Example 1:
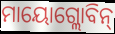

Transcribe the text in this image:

ମାୟୋଗ୍ଲୋବିନ୍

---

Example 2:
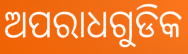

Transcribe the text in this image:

ଅପରାଧଗୁଡିକ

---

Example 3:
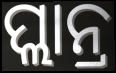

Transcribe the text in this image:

ପ୍ଲାନ୍ର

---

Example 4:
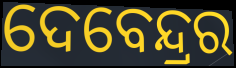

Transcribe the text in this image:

ଦେବେନ୍ଦ୍ରର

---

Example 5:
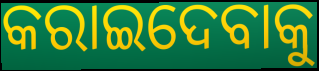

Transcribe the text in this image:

କରାଇଦେବାକୁ